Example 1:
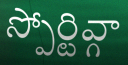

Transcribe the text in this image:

స్పోర్టివ్గా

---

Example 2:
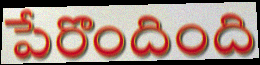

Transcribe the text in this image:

పేరొందింది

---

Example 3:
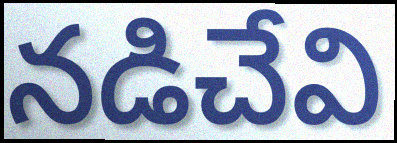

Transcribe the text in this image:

నడిచేవి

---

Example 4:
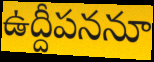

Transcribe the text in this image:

ఉద్దీపననూ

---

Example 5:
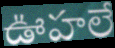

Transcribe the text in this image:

ఊహలే